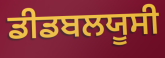
ਡੀਡਬਲਯੂਸੀ